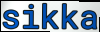
sikka